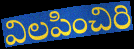
విలపించిరి